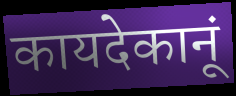
कायदेकानूं